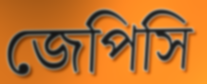
জেপিসি